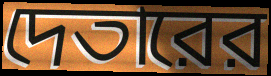
দেতারের